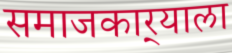
समाजकार्याला